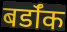
बर्डॉक